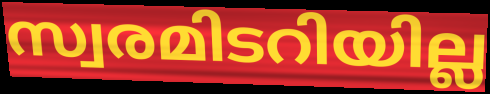
സ്വരമിടറിയില്ല